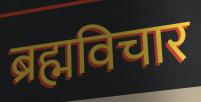
ब्रह्मविचार